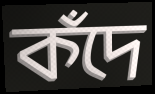
কঁদে